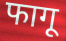
फागू